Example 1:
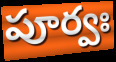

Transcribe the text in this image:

పూర్వః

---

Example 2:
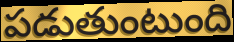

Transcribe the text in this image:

పడుతుంటుంది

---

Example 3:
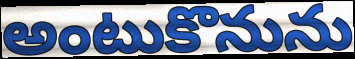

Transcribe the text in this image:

అంటుకొనును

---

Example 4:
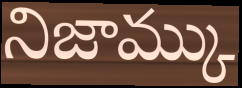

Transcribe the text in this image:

నిజామ్కు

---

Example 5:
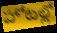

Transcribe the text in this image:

హోటల్లో